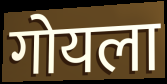
गोयला